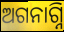
ଅଗନାଗ୍ନି